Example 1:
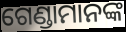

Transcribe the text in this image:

ଗେଣ୍ଡାମାନଙ୍କ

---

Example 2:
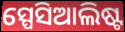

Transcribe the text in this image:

ସ୍ପେସିଆଲିଷ୍ଟ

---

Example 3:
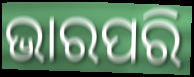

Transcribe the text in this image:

ଭାରପରି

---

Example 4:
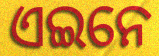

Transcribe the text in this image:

ଏଇନେ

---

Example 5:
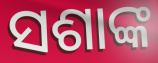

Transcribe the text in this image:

ସଶାଙ୍କ